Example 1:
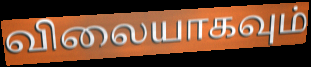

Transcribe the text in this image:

விலையாகவும்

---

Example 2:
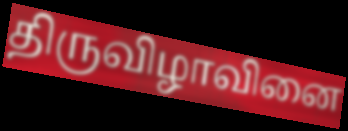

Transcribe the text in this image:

திருவிழாவினை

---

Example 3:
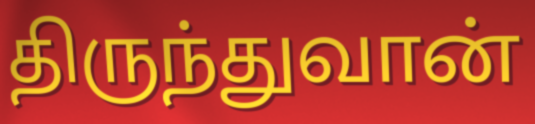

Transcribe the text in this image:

திருந்துவான்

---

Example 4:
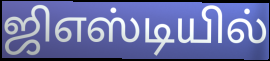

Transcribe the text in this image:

ஜிஎஸ்டியில்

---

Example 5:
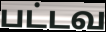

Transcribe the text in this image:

பட்டவ